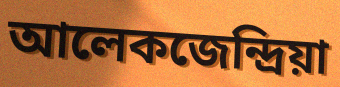
আলেকজেন্দ্ৰিয়া